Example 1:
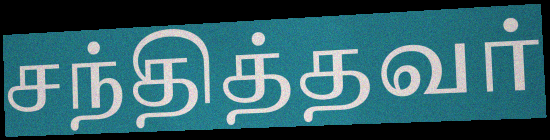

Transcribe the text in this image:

சந்தித்தவர்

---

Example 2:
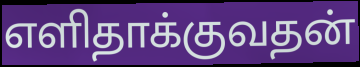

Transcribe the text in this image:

எளிதாக்குவதன்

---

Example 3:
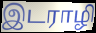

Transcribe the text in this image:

இடராழி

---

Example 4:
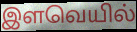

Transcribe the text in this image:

இளவெயில்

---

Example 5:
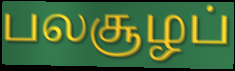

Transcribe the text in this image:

பலசூழப்